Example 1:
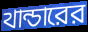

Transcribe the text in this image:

থান্ডারের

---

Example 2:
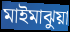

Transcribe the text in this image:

মাইমাঝুয়া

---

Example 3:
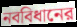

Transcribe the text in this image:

নববিধানের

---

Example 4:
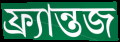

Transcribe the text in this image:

ফ্র্যান্তজ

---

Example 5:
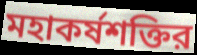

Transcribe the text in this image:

মহাকর্ষশক্তির